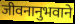
जीवनानुभवाने